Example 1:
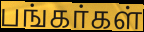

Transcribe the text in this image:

பங்கர்கள்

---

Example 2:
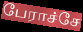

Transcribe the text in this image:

பேராச்சே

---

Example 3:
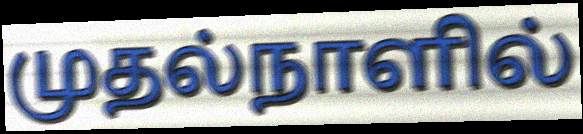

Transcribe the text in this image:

முதல்நாளில்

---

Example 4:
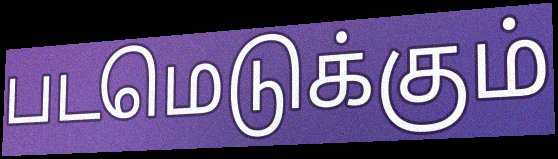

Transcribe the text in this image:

படமெடுக்கும்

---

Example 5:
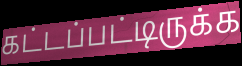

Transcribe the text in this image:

கட்டப்பட்டிருக்க